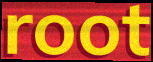
root